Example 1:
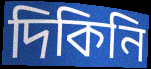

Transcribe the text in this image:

দিকিনি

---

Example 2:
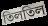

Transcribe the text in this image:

তিলতিল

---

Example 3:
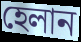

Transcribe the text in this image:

হেলান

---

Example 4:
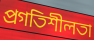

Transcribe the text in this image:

প্রগতিশীলতা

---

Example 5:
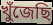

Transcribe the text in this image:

খুঁজেছি